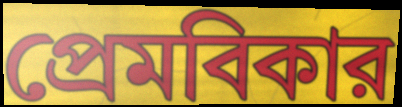
প্রেমবিকার